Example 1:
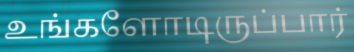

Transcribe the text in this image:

உங்களோடிருப்பார்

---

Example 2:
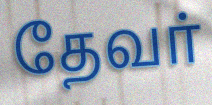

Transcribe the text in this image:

தேவர்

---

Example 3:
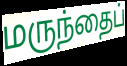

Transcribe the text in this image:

மருந்தைப்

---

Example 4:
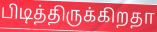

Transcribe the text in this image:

பிடித்திருக்கிறதா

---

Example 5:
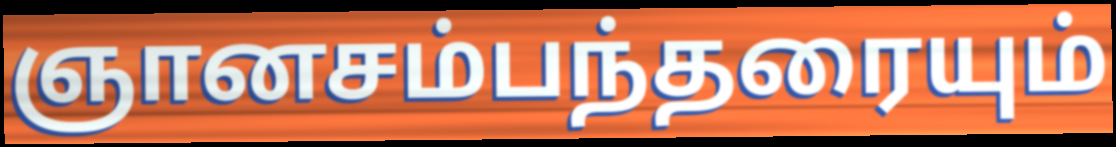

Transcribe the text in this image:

ஞானசம்பந்தரையும்